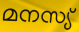
മനസ്യ്